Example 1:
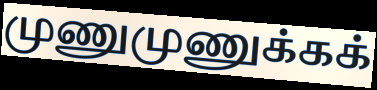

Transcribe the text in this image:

முணுமுணுக்கக்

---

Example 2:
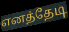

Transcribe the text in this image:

எனத்தேடி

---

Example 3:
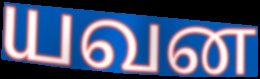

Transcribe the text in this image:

யவன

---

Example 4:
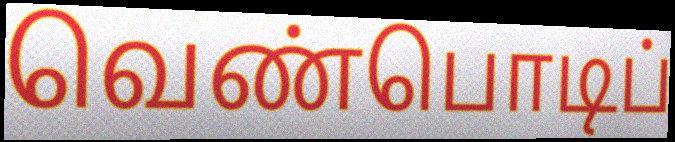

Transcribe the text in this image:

வெண்பொடிப்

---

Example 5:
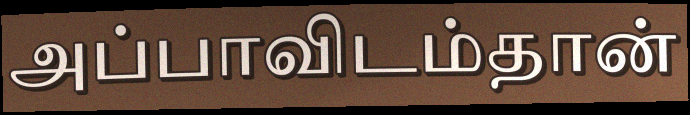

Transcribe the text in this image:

அப்பாவிடம்தான்